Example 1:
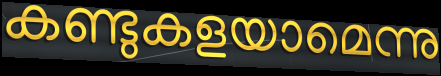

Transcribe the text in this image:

കണ്ടുകളയാമെന്നു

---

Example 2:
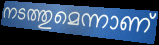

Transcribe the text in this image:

നടത്തുമെന്നാണ്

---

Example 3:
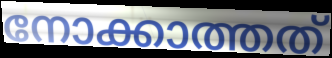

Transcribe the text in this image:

നോക്കാത്തത്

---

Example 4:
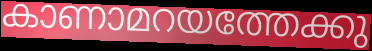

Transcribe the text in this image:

കാണാമറയത്തേക്കു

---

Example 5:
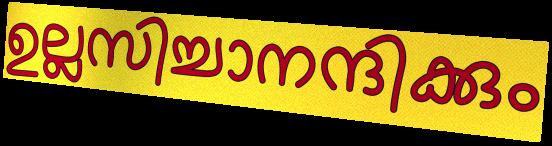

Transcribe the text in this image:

ഉല്ലസിച്ചാനന്ദിക്കും